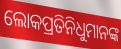
ଲୋକପ୍ରତିନିଧୁମାନଙ୍କ